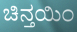
ಚಿನ್ತಯಿಂ